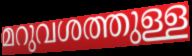
മറുവശത്തുള്ള